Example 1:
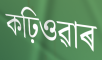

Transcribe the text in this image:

কঢ়িওৱাৰ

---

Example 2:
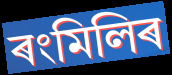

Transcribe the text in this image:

ৰংমিলিৰ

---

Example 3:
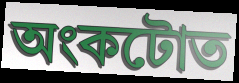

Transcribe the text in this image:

অংকটোত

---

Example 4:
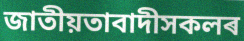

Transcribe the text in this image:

জাতীয়তাবাদীসকলৰ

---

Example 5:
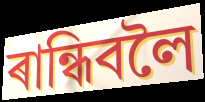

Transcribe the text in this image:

ৰান্ধিবলৈ